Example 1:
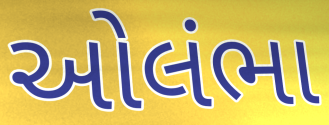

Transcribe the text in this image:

ઓલંભા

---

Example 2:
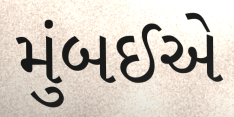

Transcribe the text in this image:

મુંબઈએ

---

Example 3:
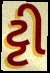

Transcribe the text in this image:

ટ્ટી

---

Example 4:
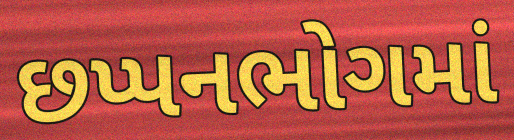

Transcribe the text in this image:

છપ્પનભોગમાં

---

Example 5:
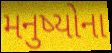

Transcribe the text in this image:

મનુષ્યોના